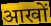
आखों